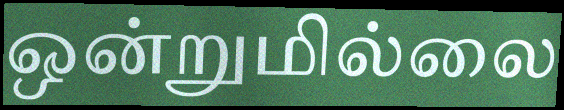
ஒன்றுமில்லை